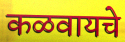
कळवायचे